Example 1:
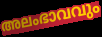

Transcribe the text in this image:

അലംഭാവവും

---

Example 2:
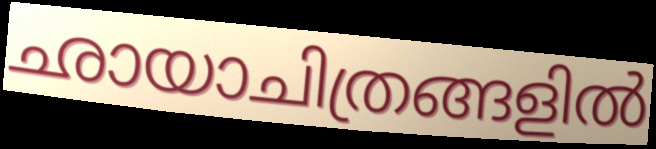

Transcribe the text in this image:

ഛായാചിത്രങ്ങളിൽ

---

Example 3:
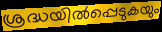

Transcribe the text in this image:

ശ്രദ്ധയിൽപ്പെടുകയും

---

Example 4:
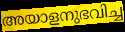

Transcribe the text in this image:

അയാളനുഭവിച്ച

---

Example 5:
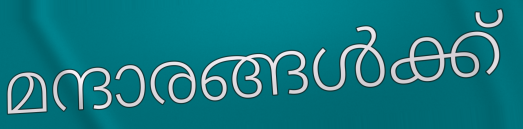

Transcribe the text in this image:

മന്ദാരങ്ങൾക്ക്